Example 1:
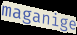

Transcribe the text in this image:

maganige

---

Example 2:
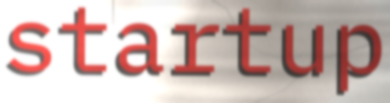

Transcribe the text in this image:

startup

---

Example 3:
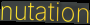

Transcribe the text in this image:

nutation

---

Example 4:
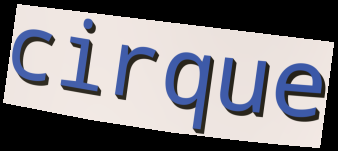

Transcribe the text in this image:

cirque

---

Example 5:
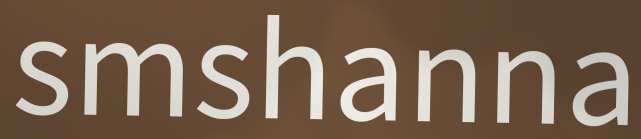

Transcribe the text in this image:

smshanna